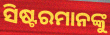
ସିଷ୍ଟରମାନଙ୍କୁ